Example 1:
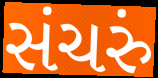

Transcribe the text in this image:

સંચરું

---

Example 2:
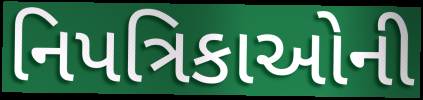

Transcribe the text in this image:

નિપત્રિકાઓની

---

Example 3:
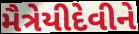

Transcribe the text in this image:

મૈત્રેયીદેવીને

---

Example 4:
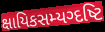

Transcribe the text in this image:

ક્ષાયિકસમ્યગ્દષ્ટિ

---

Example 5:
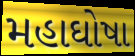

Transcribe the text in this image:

મહાઘોષા